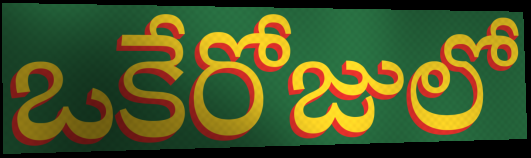
ఒకేరోజులో